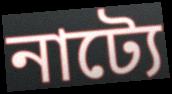
নাট্যে